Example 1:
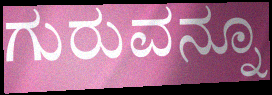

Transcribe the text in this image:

ಗುರುವನ್ನೂ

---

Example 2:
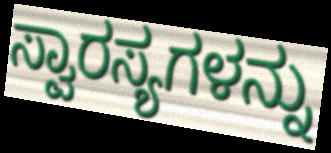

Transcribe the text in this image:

ಸ್ವಾರಸ್ಯಗಳನ್ನು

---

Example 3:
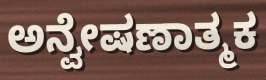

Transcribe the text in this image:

ಅನ್ವೇಷಣಾತ್ಮಕ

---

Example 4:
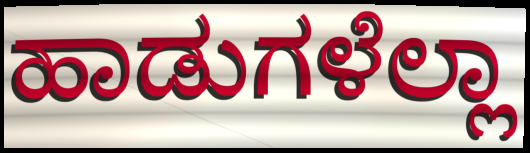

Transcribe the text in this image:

ಹಾಡುಗಳೆಲ್ಲಾ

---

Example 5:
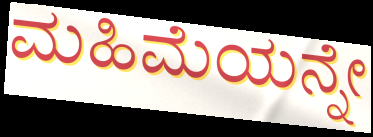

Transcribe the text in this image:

ಮಹಿಮೆಯನ್ನೇ